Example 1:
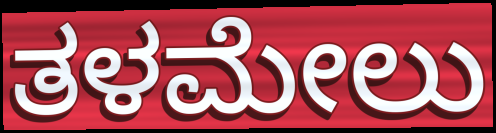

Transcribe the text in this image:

ತಳಮೇಲು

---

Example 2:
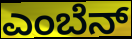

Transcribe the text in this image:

ಎಂಬೆನ್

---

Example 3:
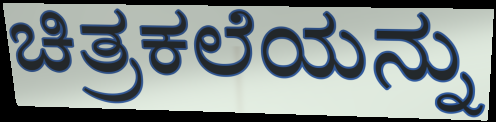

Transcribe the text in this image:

ಚಿತ್ರಕಲೆಯನ್ನು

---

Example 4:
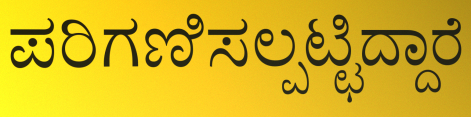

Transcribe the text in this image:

ಪರಿಗಣಿಸಲ್ಪಟ್ಟಿದ್ದಾರೆ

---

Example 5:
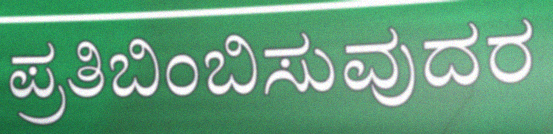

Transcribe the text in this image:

ಪ್ರತಿಬಿಂಬಿಸುವುದರ